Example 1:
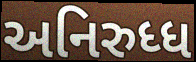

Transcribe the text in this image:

અનિરુધ્ધ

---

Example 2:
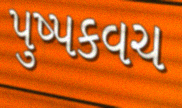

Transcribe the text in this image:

પુષ્પકવચ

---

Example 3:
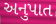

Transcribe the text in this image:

અનુપાત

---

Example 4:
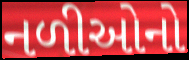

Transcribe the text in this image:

નળીઓનો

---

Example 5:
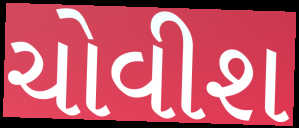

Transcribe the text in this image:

ચોવીશ